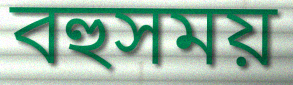
বহুসময়